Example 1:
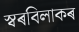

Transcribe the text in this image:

স্বৰবিলাকৰ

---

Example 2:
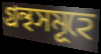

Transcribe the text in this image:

গ্ৰন্থসমূহে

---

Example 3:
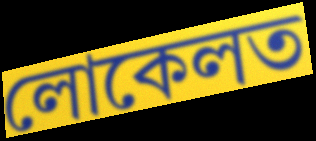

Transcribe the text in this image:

লোকেলত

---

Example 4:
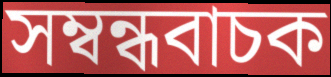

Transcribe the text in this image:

সম্বন্ধবাচক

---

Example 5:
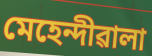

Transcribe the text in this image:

মেহেন্দীৱালা